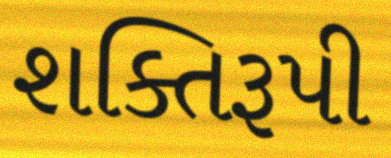
શક્તિરૂપી